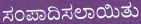
ಸಂಪಾದಿಸಲಾಯಿತು